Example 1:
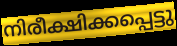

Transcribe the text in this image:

നിരീക്ഷിക്കപ്പെട്ടു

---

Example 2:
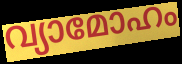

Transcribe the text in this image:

വ്യാമോഹം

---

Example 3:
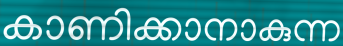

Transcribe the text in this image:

കാണിക്കാനാകുന്ന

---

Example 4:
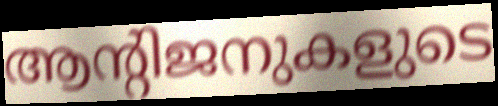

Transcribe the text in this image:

ആന്റിജനുകളുടെ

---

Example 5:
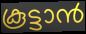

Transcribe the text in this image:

കൂട്ടാൻ